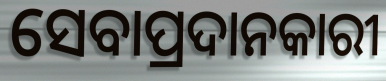
ସେବାପ୍ରଦାନକାରୀ